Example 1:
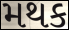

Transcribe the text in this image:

મથક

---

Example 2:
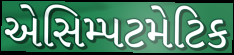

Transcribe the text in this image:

એસિમ્પટમેટિક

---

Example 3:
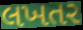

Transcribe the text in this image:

લખતર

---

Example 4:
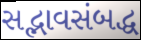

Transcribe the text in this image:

સદ્ભાવસંબદ્ધ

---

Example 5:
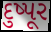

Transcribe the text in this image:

દુષ્પૂર